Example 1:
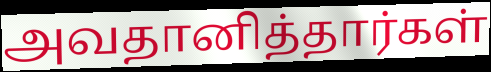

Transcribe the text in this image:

அவதானித்தார்கள்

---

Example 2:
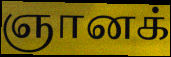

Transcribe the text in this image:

ஞானக்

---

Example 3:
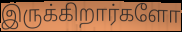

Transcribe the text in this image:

இருக்கிறார்களோ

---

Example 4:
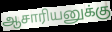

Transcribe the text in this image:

ஆசாரியனுக்கு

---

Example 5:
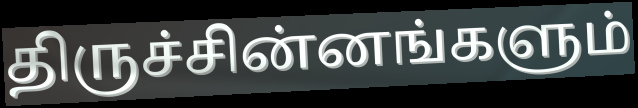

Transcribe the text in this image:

திருச்சின்னங்களும்